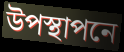
উপস্থাপনে